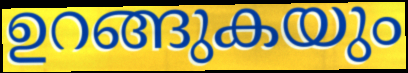
ഉറങ്ങുകയും